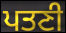
ਪਤਣੀ